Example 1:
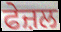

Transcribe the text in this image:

ਫੇਜ਼ਲ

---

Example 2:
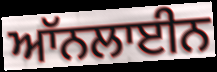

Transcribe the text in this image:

ਆੱਨਲਾਈਨ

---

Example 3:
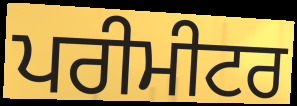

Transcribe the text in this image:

ਪਰੀਮੀਟਰ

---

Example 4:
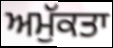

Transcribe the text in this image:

ਅਮੁੱਕਤਾ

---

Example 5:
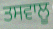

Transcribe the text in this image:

ਤਸਵਾਲੂ